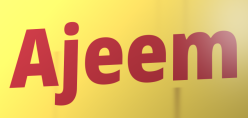
Ajeem